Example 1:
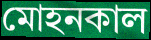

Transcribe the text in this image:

মোহনকাল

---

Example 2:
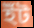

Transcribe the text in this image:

ইঁট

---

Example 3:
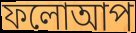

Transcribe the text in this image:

ফলোআপ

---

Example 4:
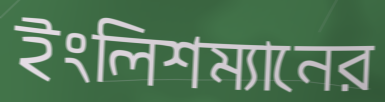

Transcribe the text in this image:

ইংলিশম্যানের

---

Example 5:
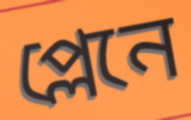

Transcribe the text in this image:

প্লেনে